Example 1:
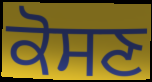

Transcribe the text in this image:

ਕੋਸਣ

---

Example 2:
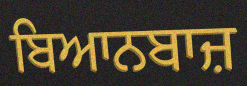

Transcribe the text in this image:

ਬਿਆਨਬਾਜ਼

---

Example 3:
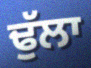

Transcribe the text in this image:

ਢੁੱਲਾ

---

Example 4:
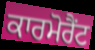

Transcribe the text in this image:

ਕਾਰਮੋਰੈਂਟ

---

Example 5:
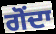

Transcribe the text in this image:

ਗੋਂਦਾ